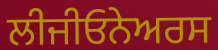
ਲੀਜੀਓਨੇਅਰਸ